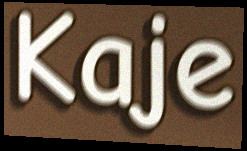
Kaje